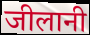
जीलानी